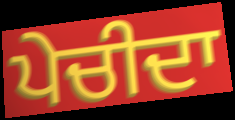
ਪੇਚੀਦਾ